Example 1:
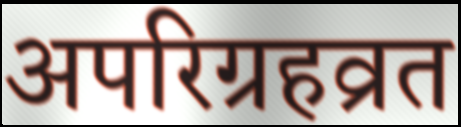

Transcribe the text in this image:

अपरिग्रहव्रत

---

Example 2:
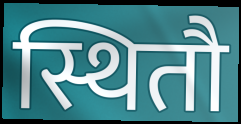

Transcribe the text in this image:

स्थितौ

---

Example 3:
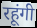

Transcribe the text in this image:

रहूंगी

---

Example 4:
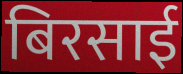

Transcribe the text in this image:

बिरसाई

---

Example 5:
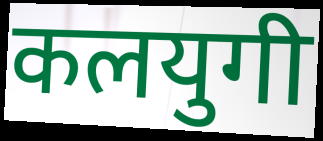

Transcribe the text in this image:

कलयुगी